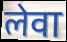
लेवा